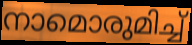
നാമൊരുമിച്ച്